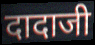
दादाजी